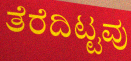
ತೆರೆದಿಟ್ಟವು